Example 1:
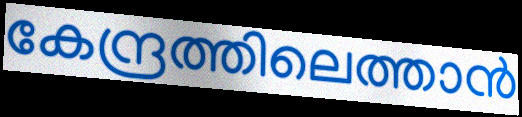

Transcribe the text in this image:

കേന്ദ്രത്തിലെത്താൻ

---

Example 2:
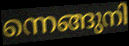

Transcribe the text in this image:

ന്നെങ്ങുനി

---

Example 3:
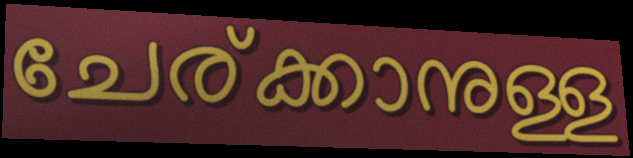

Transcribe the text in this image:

ചേര്ക്കാനുള്ള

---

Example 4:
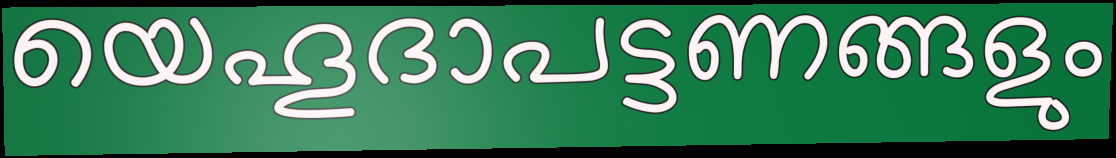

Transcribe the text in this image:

യെഹൂദാപട്ടണങ്ങളും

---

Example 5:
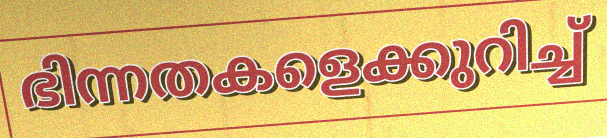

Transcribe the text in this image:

ഭിന്നതകളെക്കുറിച്ച്